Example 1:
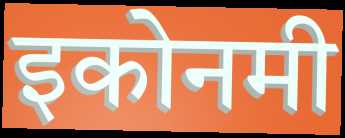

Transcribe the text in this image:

इकोनमी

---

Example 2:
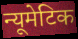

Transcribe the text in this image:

न्यूमेटिक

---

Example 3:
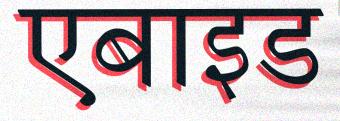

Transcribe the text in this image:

एबाइड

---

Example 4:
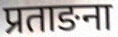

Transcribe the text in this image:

प्रताङना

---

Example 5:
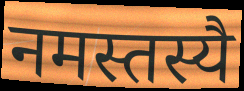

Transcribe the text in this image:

नमस्तस्यै